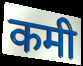
कमी